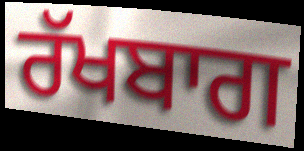
ਰੱਖਬਾਗ